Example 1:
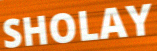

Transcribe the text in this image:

SHOLAY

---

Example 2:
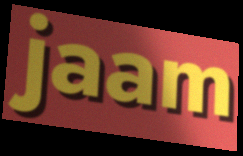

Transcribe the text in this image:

jaam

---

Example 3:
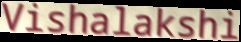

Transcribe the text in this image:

Vishalakshi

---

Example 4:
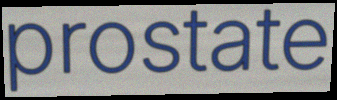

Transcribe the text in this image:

prostate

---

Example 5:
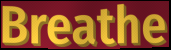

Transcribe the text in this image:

Breathe